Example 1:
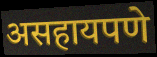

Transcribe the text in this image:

असहायपणे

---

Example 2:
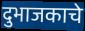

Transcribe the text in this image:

दुभाजकाचे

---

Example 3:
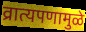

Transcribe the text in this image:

व्रात्यपणामुळे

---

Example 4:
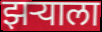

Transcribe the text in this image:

झर्‍याला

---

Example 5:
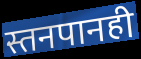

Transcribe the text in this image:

स्तनपानही